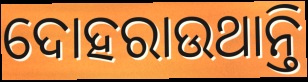
ଦୋହରାଉଥାନ୍ତି